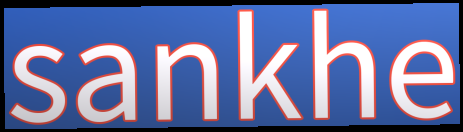
sankhe